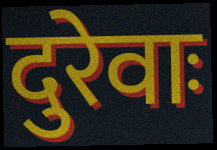
दुरेवाः